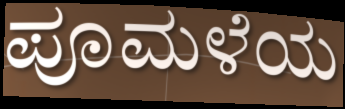
ಪೂಮಳೆಯ